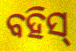
ବହିସ୍